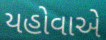
યહોવાએ